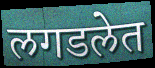
लगडलेत